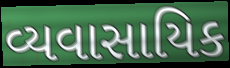
વ્યવાસાયિક